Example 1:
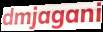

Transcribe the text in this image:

dmjagani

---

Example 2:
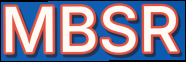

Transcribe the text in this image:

MBSR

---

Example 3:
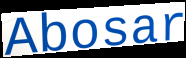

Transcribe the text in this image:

Abosar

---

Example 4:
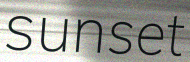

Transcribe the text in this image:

sunset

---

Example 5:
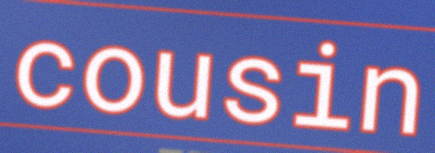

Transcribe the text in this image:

cousin